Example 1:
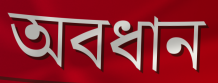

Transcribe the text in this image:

অবধান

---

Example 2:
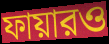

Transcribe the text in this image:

ফায়ারও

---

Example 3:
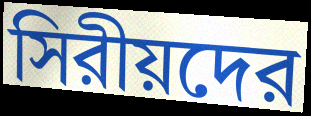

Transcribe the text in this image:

সিরীয়দের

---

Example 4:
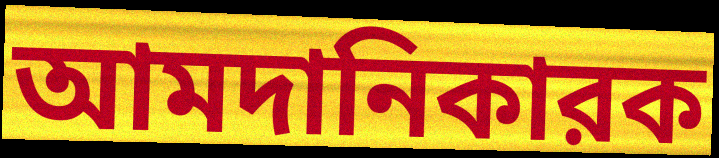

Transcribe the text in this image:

আমদানিকারক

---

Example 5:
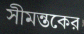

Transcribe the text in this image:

সীমন্তকের